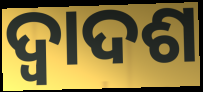
ଦ୍ବାଦଶ